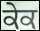
ਕੇਕ